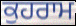
ਕੁਹਰਾਮ